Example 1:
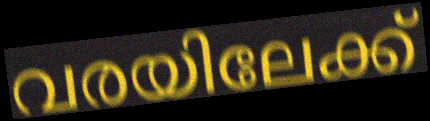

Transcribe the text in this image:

വരയിലേക്ക്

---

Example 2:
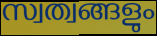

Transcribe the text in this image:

സ്വത്വങ്ങളും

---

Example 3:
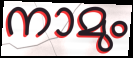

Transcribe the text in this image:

നാമും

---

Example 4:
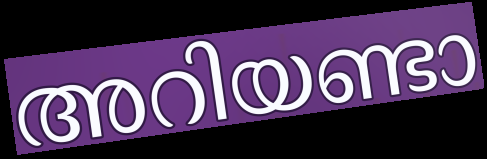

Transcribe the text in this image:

അറിയണ്ടാ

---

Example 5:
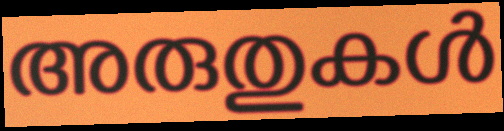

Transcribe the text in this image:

അരുതുകൾ